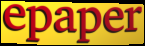
epaper